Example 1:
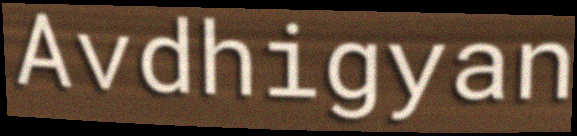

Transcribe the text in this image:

Avdhigyan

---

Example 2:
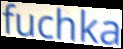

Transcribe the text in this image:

fuchka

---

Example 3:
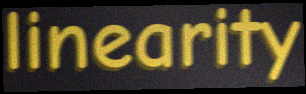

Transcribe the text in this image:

linearity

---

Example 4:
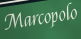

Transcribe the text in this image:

Marcopolo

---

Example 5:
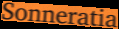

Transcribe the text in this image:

Sonneratia